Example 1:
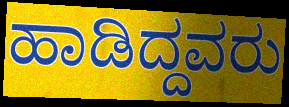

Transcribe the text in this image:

ಹಾಡಿದ್ದವರು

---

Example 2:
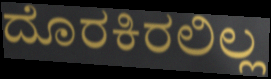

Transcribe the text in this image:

ದೊರಕಿರಲಿಲ್ಲ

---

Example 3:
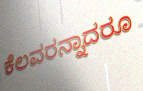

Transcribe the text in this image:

ಕೆಲವರನ್ನಾದರೂ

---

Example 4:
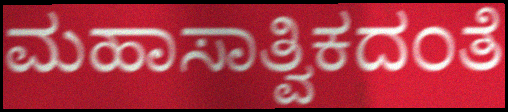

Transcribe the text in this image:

ಮಹಾಸಾತ್ವಿಕದಂತೆ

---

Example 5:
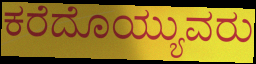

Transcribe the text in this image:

ಕರೆದೊಯ್ಯುವರು